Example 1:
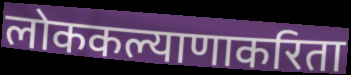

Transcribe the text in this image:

लोककल्याणाकरिता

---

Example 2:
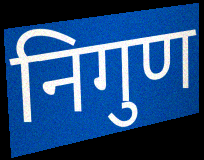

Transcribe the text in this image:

निगुण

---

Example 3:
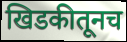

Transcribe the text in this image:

खिडकीतूनच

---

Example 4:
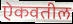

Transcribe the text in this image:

ऐकवतील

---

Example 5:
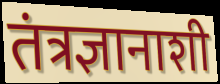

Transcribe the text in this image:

तंत्रज्ञानाशी